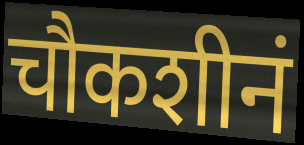
चौकशीनं